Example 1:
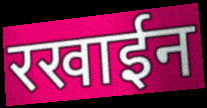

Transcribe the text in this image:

रखाईन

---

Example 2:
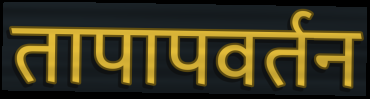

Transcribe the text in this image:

तापापवर्तन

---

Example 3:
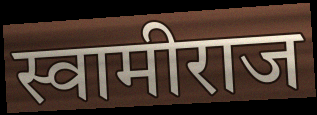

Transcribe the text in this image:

स्वामीराज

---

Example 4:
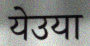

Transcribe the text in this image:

येउया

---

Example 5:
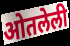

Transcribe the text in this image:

ओतलेली